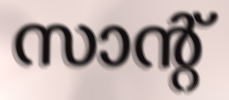
സാന്റ്